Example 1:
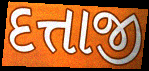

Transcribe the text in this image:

દત્તાજી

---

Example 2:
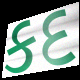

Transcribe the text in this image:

કદ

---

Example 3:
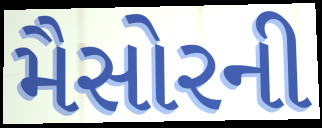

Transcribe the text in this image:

મૈસોરની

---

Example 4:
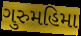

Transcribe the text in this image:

ગુરુમહિમા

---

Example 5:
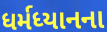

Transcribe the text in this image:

ધર્મધ્યાનના